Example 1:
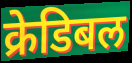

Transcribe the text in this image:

क्रेडिबल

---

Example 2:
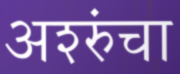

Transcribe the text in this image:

अश्रुंचा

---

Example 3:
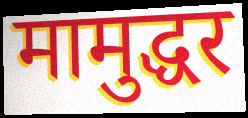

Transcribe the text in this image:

मामुद्धर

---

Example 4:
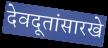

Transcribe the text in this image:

देवदूतांसारखे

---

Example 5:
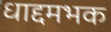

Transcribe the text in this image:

धाद्दमभक